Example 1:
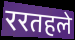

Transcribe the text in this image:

ररतहले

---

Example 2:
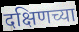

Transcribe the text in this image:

दक्षिणच्या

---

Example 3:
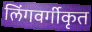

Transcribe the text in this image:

लिंगवर्गीकृत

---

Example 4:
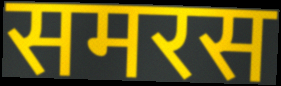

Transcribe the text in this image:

समरस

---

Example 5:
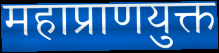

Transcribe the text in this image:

महाप्राणयुक्त